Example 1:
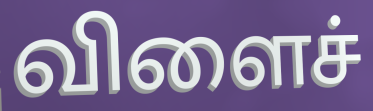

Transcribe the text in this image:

விளைச்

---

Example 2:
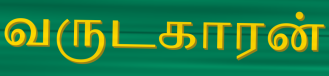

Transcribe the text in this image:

வருடகாரன்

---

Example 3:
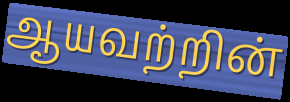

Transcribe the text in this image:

ஆயவற்றின்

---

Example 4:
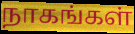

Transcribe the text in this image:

நாகங்கள்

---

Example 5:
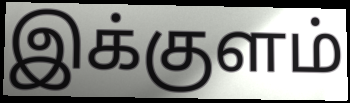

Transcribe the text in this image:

இக்குளம்